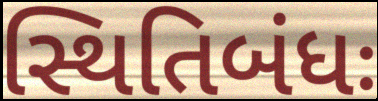
સ્થિતિબંધઃ